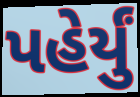
પહેર્યું